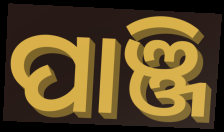
ପାଞ୍ଜି